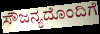
ಸೌಜನ್ಯದೊಂದಿಗೆ